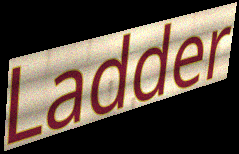
Ladder